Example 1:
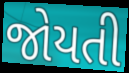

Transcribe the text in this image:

જોયતી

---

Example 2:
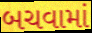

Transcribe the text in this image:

બચવામાં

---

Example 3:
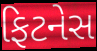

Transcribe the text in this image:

ફિટનેસ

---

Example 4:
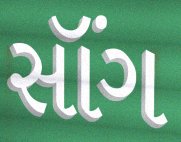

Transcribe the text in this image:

સૉંગ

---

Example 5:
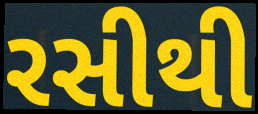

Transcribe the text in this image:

રસીથી